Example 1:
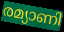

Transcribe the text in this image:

രമ്യാണി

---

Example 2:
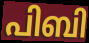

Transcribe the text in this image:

പിബി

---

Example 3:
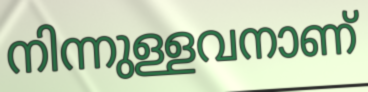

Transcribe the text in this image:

നിന്നുള്ളവനാണ്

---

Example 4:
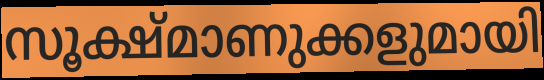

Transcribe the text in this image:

സൂക്ഷ്മാണുക്കളുമായി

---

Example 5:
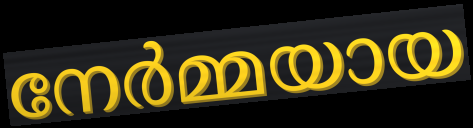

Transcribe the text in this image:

നേർമ്മയായ